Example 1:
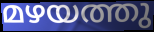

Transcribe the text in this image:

മഴയത്തു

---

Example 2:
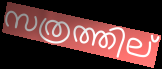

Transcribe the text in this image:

സത്രത്തില്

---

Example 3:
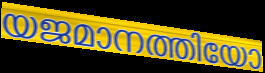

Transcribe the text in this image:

യജമാനത്തിയോ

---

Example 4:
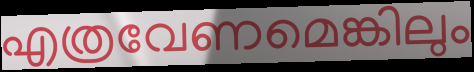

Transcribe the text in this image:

എത്രവേണമെങ്കിലും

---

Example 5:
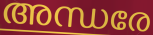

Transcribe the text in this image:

അന്ധരേ